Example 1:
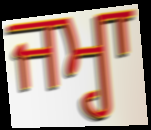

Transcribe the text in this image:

ਜਮ੍ਹਾ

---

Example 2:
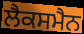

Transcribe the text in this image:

ਲੈਕਸਮੈਨ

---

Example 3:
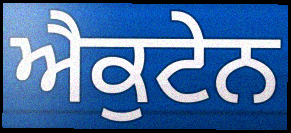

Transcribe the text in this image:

ਐਕੁਟੇਨ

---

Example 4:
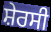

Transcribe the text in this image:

ਸ਼ੇਰਸੀ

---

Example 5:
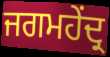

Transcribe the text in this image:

ਜਗਮਹੇਂਦ੍ਰ